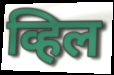
व्हिल